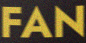
FAN